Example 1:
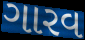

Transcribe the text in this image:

ગારવ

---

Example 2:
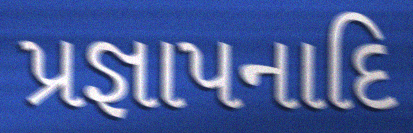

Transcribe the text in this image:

પ્રજ્ઞાપનાદિ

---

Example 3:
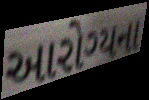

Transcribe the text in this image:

આરોગ્યના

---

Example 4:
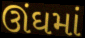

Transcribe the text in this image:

ઊંઘમાં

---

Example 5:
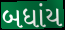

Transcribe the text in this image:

બધાંય